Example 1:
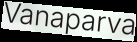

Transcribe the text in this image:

Vanaparva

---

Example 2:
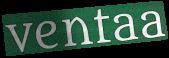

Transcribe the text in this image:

ventaa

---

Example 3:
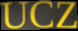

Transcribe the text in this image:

UCZ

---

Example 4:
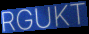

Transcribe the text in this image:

RGUKT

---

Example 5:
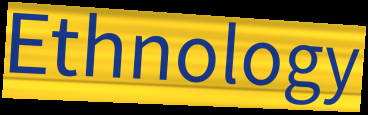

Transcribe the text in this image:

Ethnology